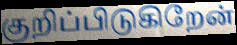
குறிப்பிடுகிறேன்